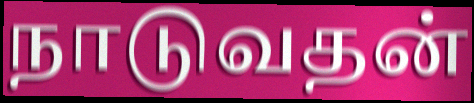
நாடுவதன்